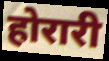
होरारी